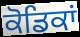
ਕੋਡਿਕਾਂ